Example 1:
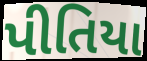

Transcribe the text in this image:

પીતિયા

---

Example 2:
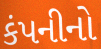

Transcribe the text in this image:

કંપનીનો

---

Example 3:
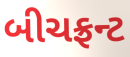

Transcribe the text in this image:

બીચફ્રન્ટ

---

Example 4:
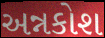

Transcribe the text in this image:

અન્નકોશ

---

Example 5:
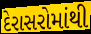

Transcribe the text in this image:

દેરાસરોમાંથી